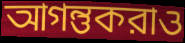
আগন্তুকরাও